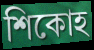
শিকোহ